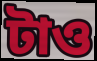
টাও